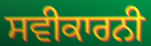
ਸਵੀਕਾਰਨੀ